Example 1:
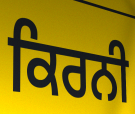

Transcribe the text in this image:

ਕਿਰਨੀ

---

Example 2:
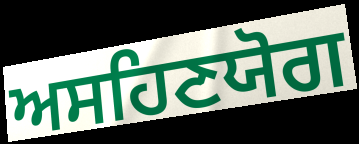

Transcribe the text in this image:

ਅਸਹਿਣਯੋਗ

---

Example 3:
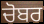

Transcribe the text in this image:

ਚੋਬਰ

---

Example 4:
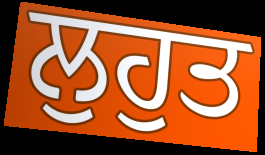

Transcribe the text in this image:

ਲੁਹੁਤ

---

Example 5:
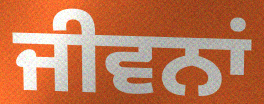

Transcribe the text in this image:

ਜੀਵਨਾਂ